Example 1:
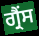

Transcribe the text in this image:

ਗ੍ਰੈਂਸ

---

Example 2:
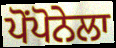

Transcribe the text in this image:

ਪੋਂਪੋਨੇਲਾ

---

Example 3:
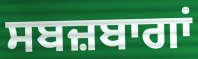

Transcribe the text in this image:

ਸਬਜ਼ਬਾਗਾਂ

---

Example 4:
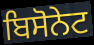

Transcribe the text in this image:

ਬਿਸੋਨੇਟ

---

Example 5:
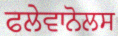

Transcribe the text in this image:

ਫਲੇਵਾਨੋਲਸ